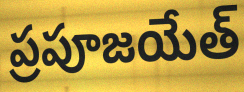
ప్రపూజయేత్